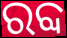
ରବ୍ଦ